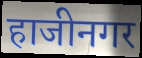
हाजीनगर